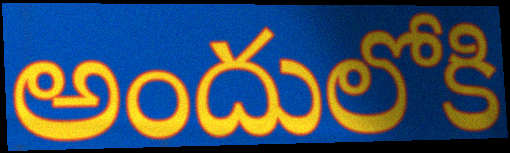
అందులోకి